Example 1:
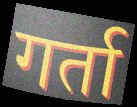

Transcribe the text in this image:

गर्ता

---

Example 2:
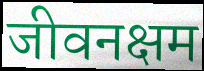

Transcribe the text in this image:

जीवनक्षम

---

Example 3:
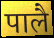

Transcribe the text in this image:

पालै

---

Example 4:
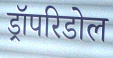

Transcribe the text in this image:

ड्रॉपरिडोल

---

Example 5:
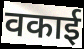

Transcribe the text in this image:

वकाई